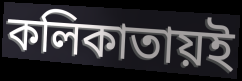
কলিকাতায়ই